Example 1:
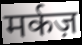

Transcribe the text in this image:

मर्कज़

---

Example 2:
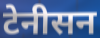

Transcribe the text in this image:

टेनीसन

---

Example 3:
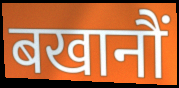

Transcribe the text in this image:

बखानौं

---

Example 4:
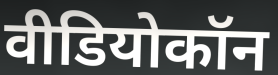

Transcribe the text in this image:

वीडियोकॉन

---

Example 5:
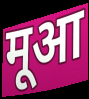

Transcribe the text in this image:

मूआ